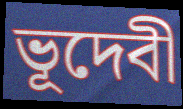
ভূদেবী